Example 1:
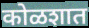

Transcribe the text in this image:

कोळशात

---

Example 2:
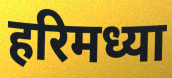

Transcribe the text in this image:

हरिमध्या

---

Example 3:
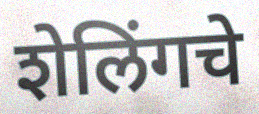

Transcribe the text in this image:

शेलिंगचे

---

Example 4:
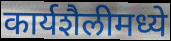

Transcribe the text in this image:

कार्यशैलीमध्ये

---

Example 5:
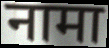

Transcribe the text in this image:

नामा